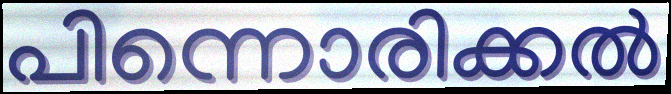
പിന്നൊരിക്കൽ